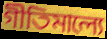
গীতিমাল্যে